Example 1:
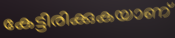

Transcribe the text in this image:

കേട്ടിരിക്കുകയാണ്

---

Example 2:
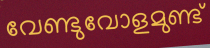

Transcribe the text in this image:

വേണ്ടുവോളമുണ്ട്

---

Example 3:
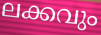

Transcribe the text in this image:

ലക്കവും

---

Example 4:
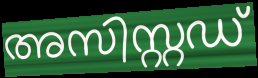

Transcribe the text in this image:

അസിസ്റ്റഡ്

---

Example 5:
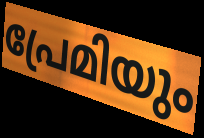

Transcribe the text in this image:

പ്രേമിയും